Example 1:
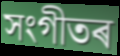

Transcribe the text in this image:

সংগীতৰ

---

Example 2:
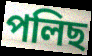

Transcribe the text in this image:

পলিছ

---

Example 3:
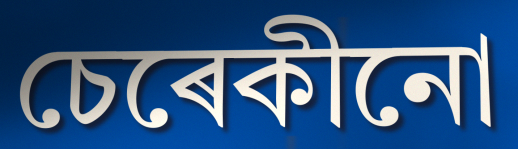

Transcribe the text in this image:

চেৰেকীনো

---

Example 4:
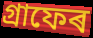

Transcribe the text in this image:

গ্ৰাফেৰ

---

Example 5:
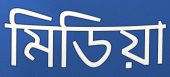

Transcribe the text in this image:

মিডিয়া